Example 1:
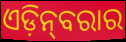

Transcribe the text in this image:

ଏଡ଼ିନ୍‍ବରାର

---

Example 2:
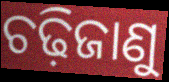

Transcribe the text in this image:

ଚଢ଼ିଜାଣୁ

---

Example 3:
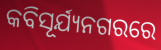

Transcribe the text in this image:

କବିସୂର୍ଯ୍ୟନଗରରେ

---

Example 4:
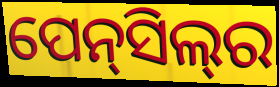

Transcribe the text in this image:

ପେନ୍‌ସିଲ୍‌ର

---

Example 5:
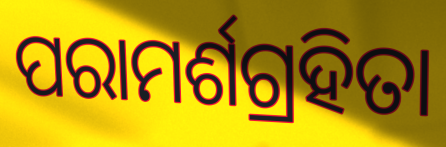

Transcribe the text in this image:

ପରାମର୍ଶଗ୍ରହିତା